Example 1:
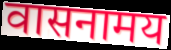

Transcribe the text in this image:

वासनामय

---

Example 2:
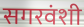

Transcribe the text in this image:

सगरवंशी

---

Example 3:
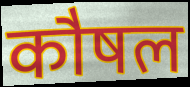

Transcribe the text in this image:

कौषल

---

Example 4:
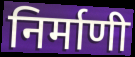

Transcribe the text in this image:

निर्माणी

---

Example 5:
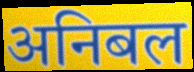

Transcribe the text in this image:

अनिबल